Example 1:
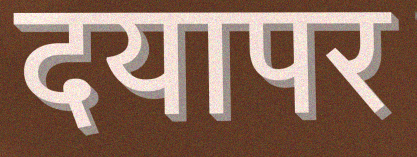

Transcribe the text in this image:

दयापर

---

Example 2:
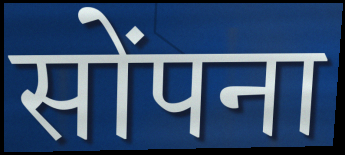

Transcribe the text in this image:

सोंपना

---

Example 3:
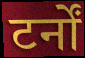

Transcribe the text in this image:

टर्नों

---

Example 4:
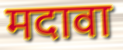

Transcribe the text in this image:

मदावा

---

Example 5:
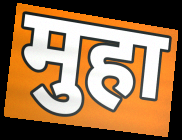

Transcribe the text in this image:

मुहा